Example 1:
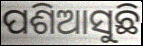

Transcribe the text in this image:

ପଶିଆସୁଛି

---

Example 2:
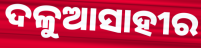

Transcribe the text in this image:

ଦଳୁଆସାହୀର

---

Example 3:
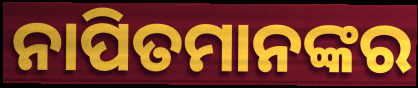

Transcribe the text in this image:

ନାପିତମାନଙ୍କର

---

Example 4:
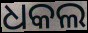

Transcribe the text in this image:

ଧକଲ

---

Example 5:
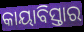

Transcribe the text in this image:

କାୟାବିସ୍ତାର